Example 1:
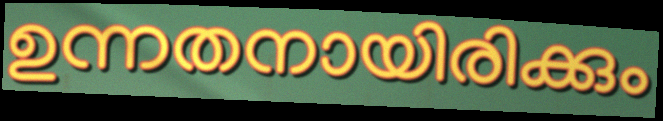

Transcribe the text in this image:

ഉന്നതനായിരിക്കും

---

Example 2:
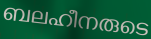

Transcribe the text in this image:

ബലഹീനരുടെ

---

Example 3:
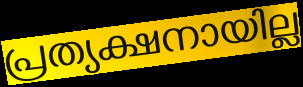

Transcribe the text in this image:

പ്രത്യക്ഷനായില്ല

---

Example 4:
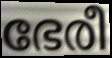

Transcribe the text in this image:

ഭേരീ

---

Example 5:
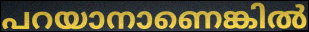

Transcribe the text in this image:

പറയാനാണെങ്കിൽ